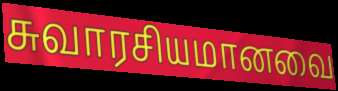
சுவாரசியமானவை